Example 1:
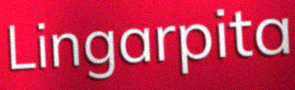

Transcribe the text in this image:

Lingarpita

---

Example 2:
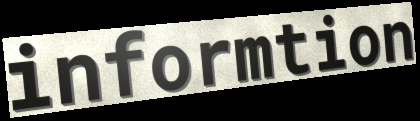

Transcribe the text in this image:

informtion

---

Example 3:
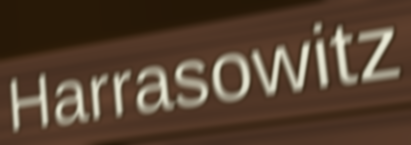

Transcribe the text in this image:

Harrasowitz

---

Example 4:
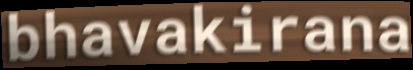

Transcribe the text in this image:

bhavakirana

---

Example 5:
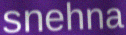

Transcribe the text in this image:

snehna